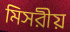
মিসরীয়